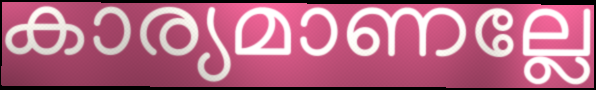
കാര്യമാണല്ലേ